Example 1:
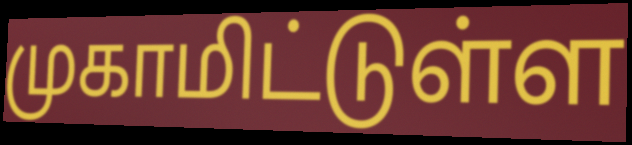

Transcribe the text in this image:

முகாமிட்டுள்ள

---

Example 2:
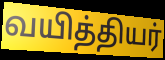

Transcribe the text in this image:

வயித்தியர்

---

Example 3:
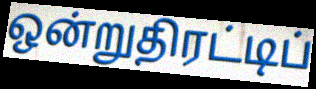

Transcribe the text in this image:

ஒன்றுதிரட்டிப்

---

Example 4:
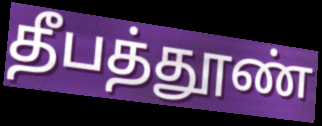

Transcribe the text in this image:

தீபத்தூண்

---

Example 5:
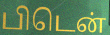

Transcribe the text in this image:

பிடென்